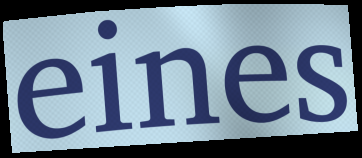
eines